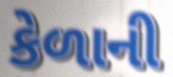
કેળાની